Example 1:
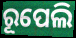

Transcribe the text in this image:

ରୂପେଲି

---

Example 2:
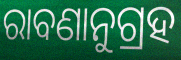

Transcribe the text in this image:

ରାବଣାନୁଗ୍ରହ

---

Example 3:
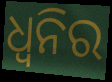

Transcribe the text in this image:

ଧ୍ୱନିର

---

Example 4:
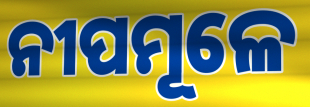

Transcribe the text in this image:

ନୀପମୂଳେ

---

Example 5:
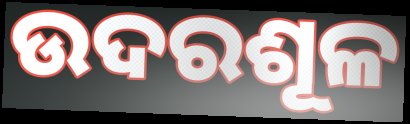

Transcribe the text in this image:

ଉଦରଶୂଳ